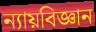
ন্যায়বিজ্ঞান